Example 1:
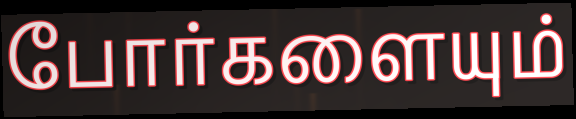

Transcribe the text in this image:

போர்களையும்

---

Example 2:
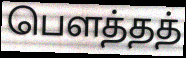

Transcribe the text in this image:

பௌத்தத்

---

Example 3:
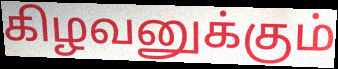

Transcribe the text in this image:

கிழவனுக்கும்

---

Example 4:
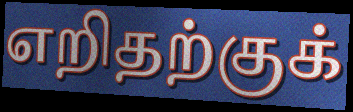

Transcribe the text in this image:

எறிதற்குக்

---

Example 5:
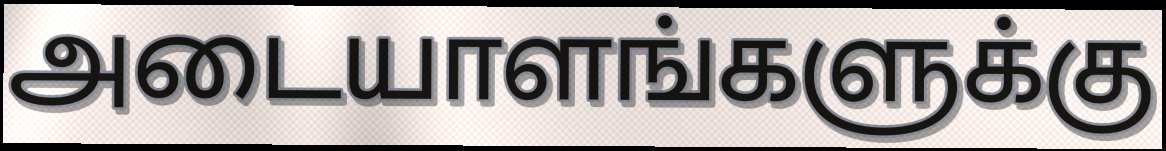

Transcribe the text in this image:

அடையாளங்களுக்கு